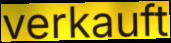
verkauft